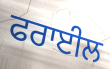
ਫਰਾਈਲ